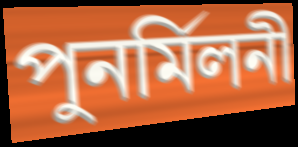
পুনর্মিলনী